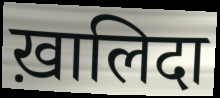
ख़ालिदा